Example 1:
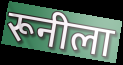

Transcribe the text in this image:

रूनीला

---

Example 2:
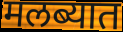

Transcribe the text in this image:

मलब्यात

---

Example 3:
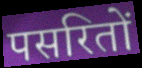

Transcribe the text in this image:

पसरितों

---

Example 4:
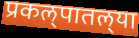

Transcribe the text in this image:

प्रकल्पातल्या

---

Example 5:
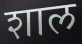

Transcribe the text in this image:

शाल